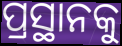
ପ୍ରସ୍ଥାନକୁ